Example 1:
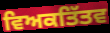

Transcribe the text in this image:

ਵਿਅਕਤਿੱਤਵ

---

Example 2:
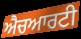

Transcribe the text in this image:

ਐਚਆਰਟੀ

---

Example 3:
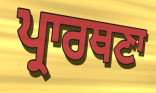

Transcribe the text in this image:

ਪ੍ਰਾਰਥਣਾ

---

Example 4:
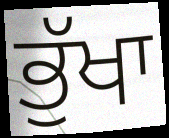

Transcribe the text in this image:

ਭੁੱਖਾ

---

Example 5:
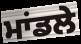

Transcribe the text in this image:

ਮਾਂਡਲੇ